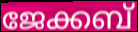
ജേക്കബ്